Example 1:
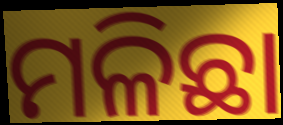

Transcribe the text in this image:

ମଳିଛା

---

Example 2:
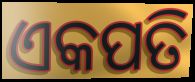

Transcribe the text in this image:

ଏକପତି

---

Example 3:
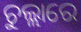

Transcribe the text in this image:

ଚୁଲ୍ଲାରେ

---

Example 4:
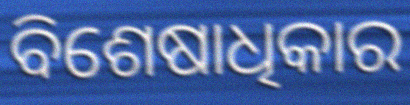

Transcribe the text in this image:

ବିଶେଷାଧିକାର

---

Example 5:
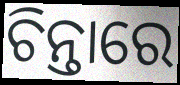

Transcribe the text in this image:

ଚିନ୍ତାରେ